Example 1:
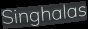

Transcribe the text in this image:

Singhalas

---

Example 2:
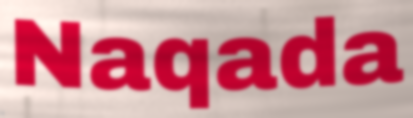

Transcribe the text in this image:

Naqada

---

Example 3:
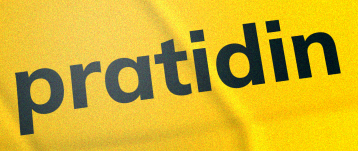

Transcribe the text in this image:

pratidin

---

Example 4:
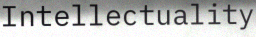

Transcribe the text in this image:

Intellectuality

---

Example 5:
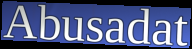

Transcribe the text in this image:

Abusadat